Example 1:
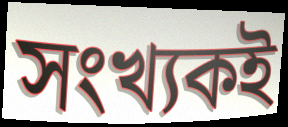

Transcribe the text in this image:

সংখ্যকই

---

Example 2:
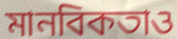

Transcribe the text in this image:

মানবিকতাও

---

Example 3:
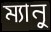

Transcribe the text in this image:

ম্যানু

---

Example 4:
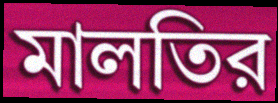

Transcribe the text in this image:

মালতির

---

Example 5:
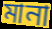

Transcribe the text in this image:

মানা